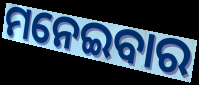
ମନେଇବାର